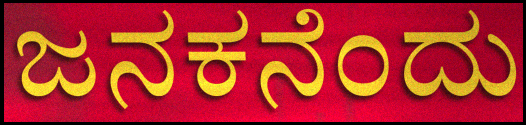
ಜನಕನೆಂದು